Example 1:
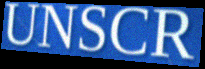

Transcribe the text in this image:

UNSCR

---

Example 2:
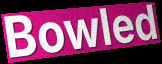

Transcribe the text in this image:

Bowled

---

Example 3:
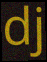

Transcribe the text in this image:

dj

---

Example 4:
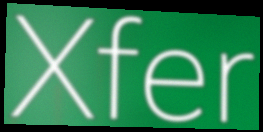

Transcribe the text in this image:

Xfer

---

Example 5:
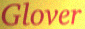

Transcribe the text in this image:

Glover